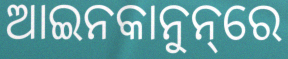
ଆଇନକାନୁନ୍‌ରେ